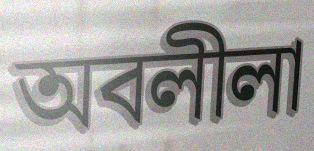
অবলীলা